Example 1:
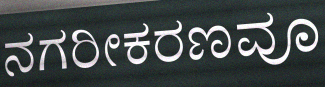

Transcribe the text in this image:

ನಗರೀಕರಣವೂ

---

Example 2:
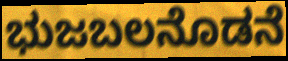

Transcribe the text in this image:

ಭುಜಬಲನೊಡನೆ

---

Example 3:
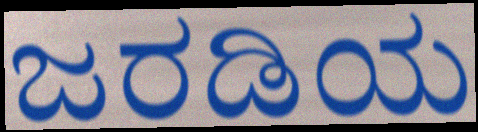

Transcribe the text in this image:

ಜರಡಿಯ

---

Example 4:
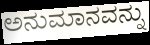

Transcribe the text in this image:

ಅನುಮಾನವನ್ನು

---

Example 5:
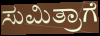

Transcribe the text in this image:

ಸುಮಿತ್ರಾಗೆ